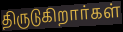
திருடுகிறார்கள்